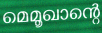
മെമൂഖാന്റെ